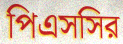
পিএসসির